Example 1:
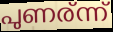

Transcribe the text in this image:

പുണര്ന്ന്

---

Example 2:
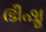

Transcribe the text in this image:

ഭീഷ്മ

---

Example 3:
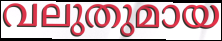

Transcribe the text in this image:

വലുതുമായ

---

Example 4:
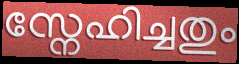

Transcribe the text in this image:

സ്നേഹിച്ചതും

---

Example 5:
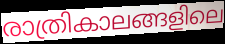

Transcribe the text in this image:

രാത്രികാലങ്ങളിലെ